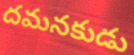
దమనకుడు